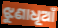
ଝୁଣାଧୂଆଁ